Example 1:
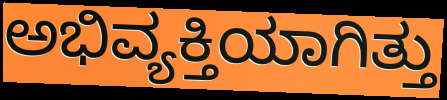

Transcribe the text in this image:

ಅಭಿವ್ಯಕ್ತಿಯಾಗಿತ್ತು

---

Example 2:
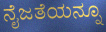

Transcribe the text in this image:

ನೈಜತೆಯನ್ನೂ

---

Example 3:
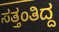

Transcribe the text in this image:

ಸತ್ತಂತಿದ್ದ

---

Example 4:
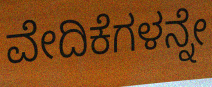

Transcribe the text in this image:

ವೇದಿಕೆಗಳನ್ನೇ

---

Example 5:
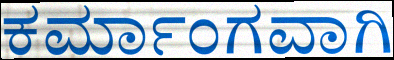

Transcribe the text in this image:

ಕರ್ಮಾಂಗವಾಗಿ